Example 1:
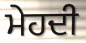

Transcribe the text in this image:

ਮੇਹਦੀ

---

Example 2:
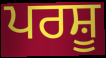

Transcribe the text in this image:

ਪਰਸ਼ੂ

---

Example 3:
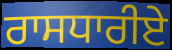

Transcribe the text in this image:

ਰਾਸਧਾਰੀਏ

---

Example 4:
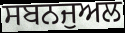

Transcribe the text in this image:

ਸਬਨਜੁਅਲ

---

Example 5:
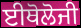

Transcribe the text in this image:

ਈਥੋਲੋਜੀ